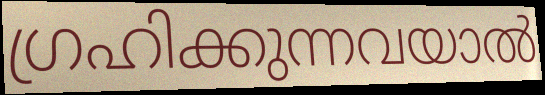
ഗ്രഹിക്കുന്നവയാൽ